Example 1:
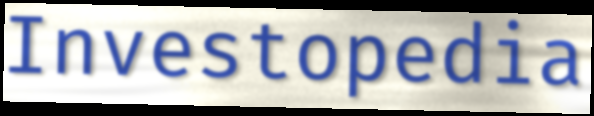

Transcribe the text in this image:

Investopedia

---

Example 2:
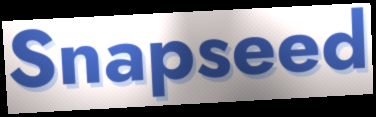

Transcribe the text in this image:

Snapseed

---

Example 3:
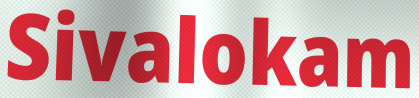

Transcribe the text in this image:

Sivalokam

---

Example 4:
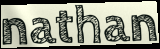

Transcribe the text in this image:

nathan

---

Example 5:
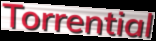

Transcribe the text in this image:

Torrential